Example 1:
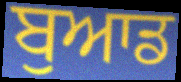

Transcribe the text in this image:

ਬੁਆਡ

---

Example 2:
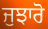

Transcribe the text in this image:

ਜੁਝਾਰੋ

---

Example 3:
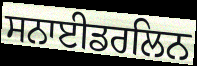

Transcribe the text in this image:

ਸਨਾਈਡਰਲਿਨ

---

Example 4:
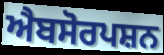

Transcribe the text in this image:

ਐਬਸੋਰਪਸ਼ਨ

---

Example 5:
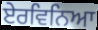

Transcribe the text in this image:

ਏਰਵਿਨਿਆ